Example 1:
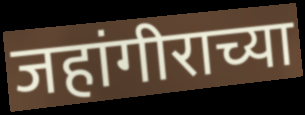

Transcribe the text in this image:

जहांगीराच्या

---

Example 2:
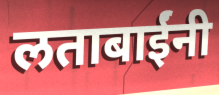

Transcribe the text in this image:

लताबाईंनी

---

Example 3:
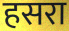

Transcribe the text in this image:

हसरा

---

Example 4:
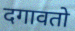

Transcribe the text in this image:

दगावतो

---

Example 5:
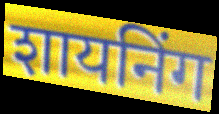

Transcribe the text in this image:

शायनिंग